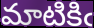
మాటికిఁ